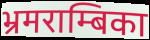
भ्रमराम्बिका